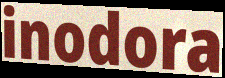
inodora